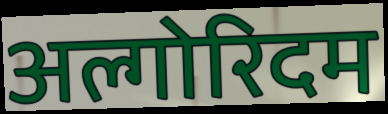
अल्गोरिदम